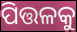
ପିତ୍ତଳକୁ